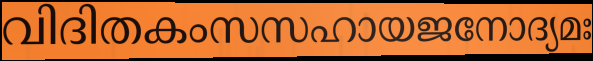
വിദിതകംസസഹായജനോദ്യമഃ